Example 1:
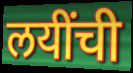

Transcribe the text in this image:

लयींची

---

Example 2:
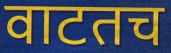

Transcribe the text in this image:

वाटतच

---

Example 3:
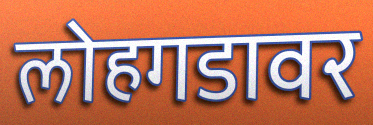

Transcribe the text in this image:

लोहगडावर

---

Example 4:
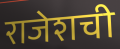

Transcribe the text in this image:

राजेशची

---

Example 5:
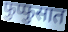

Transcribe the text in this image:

फुप्फुसात